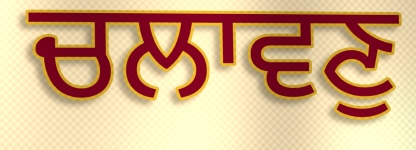
ਚਲਾਵਣੁ